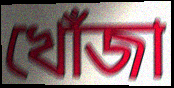
খোঁজা